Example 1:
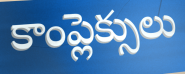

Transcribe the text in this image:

కాంప్లెక్సులు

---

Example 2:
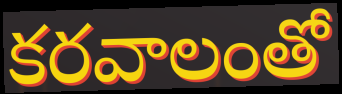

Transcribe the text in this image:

కరవాలంతో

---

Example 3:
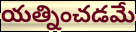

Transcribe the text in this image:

యత్నించడమే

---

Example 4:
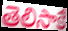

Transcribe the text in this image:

తెలిసాకే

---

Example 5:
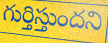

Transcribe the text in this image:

గుర్తిస్తుందని